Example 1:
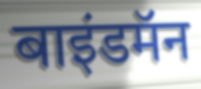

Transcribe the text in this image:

बाइंडमॅन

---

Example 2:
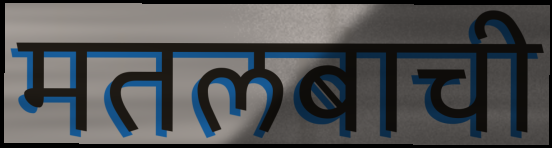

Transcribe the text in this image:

मतलबाची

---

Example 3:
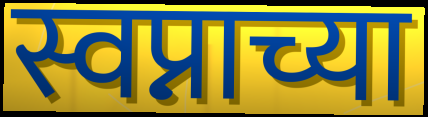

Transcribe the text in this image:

स्वप्नाच्या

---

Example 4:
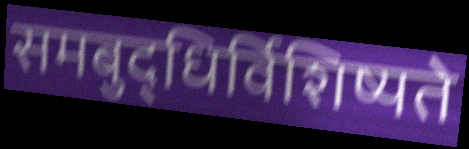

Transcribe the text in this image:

समबुद्धिर्विशिष्यते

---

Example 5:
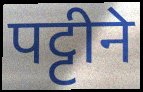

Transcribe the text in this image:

पट्टीने